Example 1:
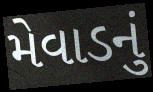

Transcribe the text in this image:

મેવાડનું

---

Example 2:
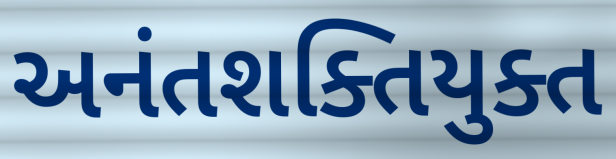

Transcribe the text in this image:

અનંતશક્તિયુક્ત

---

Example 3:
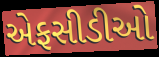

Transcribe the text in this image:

એફસીડીઓ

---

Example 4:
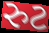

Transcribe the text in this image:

રુટ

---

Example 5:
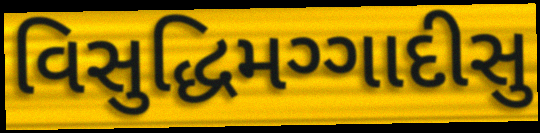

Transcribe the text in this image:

વિસુદ્ધિમગ્ગાદીસુ